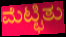
ಮೆಟ್ಟಿತು